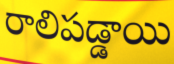
రాలిపడ్డాయి